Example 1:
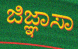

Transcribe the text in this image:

ಜಿಜ್ಞಾಸಾ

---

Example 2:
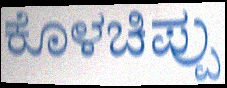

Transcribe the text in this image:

ಕೊಳಚಿಪ್ಪು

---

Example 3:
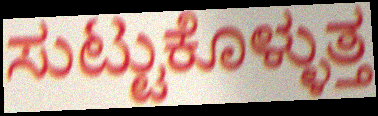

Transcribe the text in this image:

ಸುಟ್ಟುಕೊಳ್ಳುತ್ತ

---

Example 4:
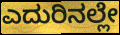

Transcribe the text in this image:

ಎದುರಿನಲ್ಲೇ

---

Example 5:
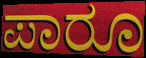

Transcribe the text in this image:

ಪಾರೂ